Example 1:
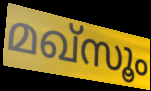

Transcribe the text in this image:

മഖ്സൂം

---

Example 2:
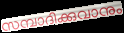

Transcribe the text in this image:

സമ്പാദിക്കുവാനും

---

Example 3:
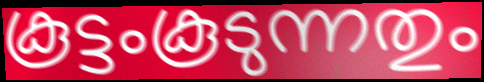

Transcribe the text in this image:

കൂട്ടംകൂടുന്നതും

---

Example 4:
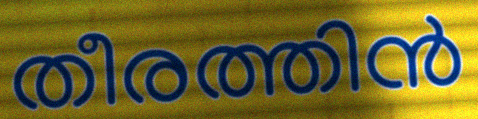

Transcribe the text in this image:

തീരത്തിൻ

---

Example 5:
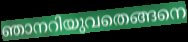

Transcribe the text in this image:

ഞാനറിയുവതെങ്ങനെ